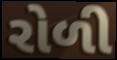
રોળી